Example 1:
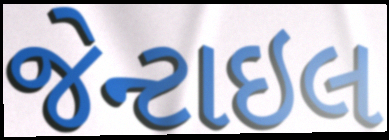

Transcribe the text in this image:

જેન્ટાઇલ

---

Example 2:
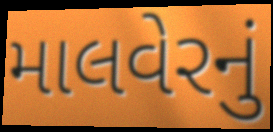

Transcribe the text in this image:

માલવેરનું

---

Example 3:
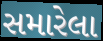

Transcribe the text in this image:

સમારેલા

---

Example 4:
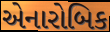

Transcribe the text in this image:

એનારોબિક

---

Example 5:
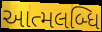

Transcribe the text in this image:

આત્મલબ્ધિ